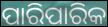
ପାରିପାରିକ